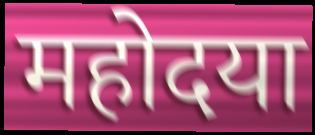
महोदया